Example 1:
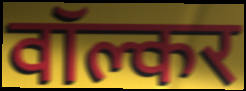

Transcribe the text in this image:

वॉल्कर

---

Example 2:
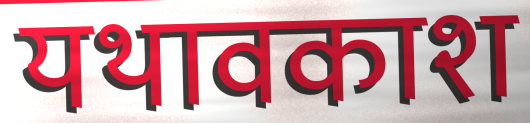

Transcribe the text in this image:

यथावकाश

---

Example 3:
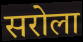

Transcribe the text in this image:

सरोला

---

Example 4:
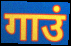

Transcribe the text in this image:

गाउं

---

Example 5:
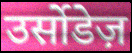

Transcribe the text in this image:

उर्सोडेज़